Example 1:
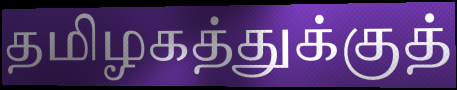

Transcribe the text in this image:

தமிழகத்துக்குத்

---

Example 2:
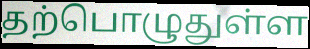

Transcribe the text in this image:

தற்பொழுதுள்ள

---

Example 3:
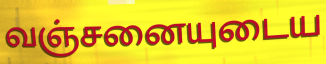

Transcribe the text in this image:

வஞ்சனையுடைய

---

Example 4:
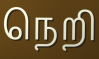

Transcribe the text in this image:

நெறி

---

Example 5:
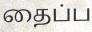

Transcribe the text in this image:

தைப்ப